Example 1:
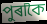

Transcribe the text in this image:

পুৰাকৈ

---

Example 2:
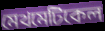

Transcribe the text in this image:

মেথমেটিকেল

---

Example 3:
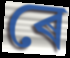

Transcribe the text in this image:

ৰে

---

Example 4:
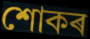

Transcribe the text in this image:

শোকৰ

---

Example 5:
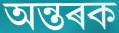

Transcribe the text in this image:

অন্তৰক